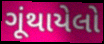
ગૂંથાયેલો